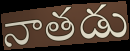
నాతడు